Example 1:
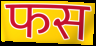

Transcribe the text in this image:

फस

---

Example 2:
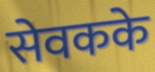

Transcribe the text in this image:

सेवकके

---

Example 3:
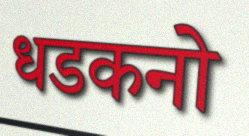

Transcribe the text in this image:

धडकनो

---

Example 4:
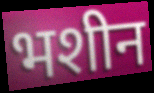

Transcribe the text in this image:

भशीन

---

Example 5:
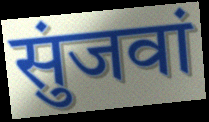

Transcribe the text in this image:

सुंजवां